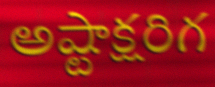
అష్టాక్షరిగ